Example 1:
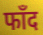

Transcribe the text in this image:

फाँद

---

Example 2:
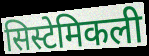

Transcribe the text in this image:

सिस्टेमिकली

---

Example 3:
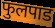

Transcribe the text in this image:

फुलपाड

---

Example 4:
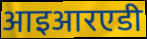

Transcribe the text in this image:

आइआरएडी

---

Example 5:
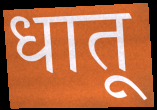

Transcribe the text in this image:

धातू